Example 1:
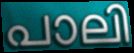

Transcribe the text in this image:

പാലി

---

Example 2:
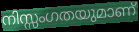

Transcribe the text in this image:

നിസ്സംഗതയുമാണ്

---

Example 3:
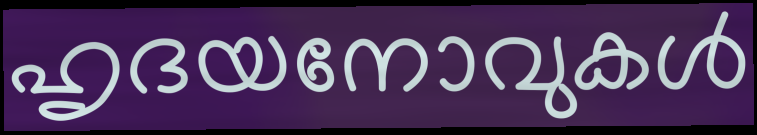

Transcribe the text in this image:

ഹൃദയനോവുകൾ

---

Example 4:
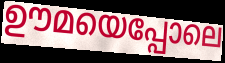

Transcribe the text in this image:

ഊമയെപ്പോലെ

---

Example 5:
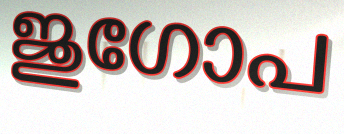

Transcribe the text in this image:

ജുഗോപ